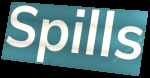
Spills